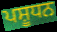
ਪਸ਼ੂਧਨ